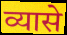
व्यासे